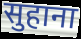
सुहाना